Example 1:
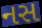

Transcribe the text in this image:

નસ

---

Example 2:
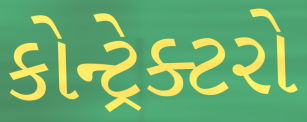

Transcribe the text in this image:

કોન્ટ્રેક્ટરો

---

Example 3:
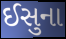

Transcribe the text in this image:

ઈસુના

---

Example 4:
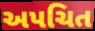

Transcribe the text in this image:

અપચિત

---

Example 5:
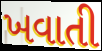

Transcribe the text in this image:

ખવાતી